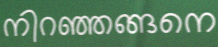
നിറഞ്ഞങ്ങനെ